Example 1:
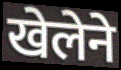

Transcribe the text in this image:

खेलेने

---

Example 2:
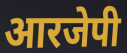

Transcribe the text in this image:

आरजेपी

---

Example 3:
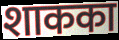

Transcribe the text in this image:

शाकका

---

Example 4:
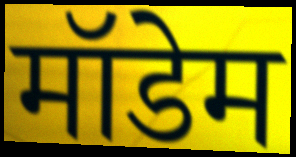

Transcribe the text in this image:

मॉडेम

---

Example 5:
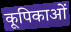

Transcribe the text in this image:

कूपिकाओं